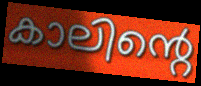
കാലിന്റെ